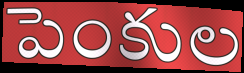
పెంకుల